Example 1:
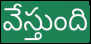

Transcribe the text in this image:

వేస్తుంది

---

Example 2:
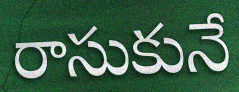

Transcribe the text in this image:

రాసుకునే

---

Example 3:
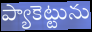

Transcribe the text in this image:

ప్యాకెట్టును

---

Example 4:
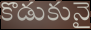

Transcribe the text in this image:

కొడుకునై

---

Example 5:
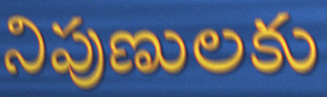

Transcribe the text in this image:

నిపుణులకు